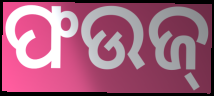
ଫଉଜ୍